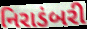
નિરાડંબરી